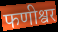
फणीश्वर